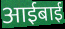
आईबाई